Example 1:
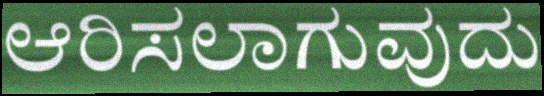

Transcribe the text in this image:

ಆರಿಸಲಾಗುವುದು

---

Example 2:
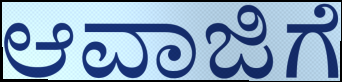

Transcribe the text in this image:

ಆವಾಜಿಗೆ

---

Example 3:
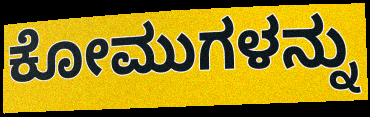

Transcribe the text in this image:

ಕೋಮುಗಳನ್ನು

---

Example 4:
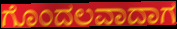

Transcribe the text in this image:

ಗೊಂದಲವಾದಾಗ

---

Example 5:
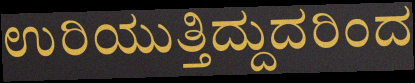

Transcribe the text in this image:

ಉರಿಯುತ್ತಿದ್ದುದರಿಂದ